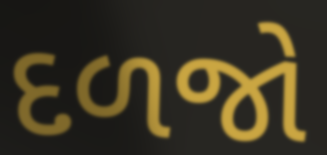
દળજો